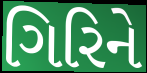
ગિરિને